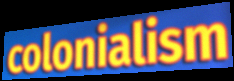
colonialism